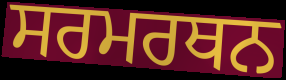
ਸਰਮਰਥਨ